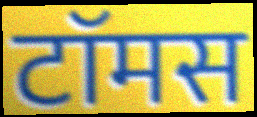
टॉमस